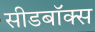
सीडबॉक्स